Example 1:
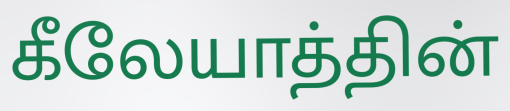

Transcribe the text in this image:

கீலேயாத்தின்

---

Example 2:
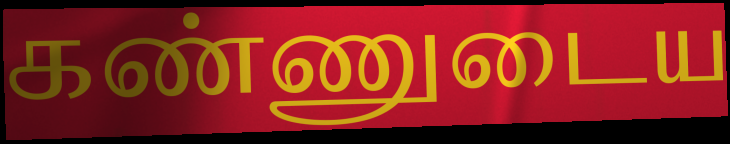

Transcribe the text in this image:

கண்ணுடைய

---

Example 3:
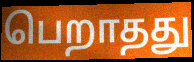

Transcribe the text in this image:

பெறாதது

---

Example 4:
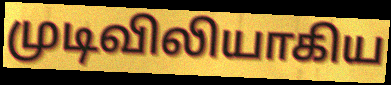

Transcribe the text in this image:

முடிவிலியாகிய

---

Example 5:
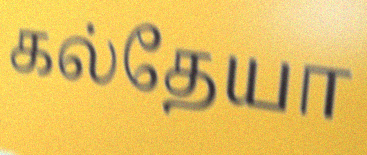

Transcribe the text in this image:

கல்தேயா